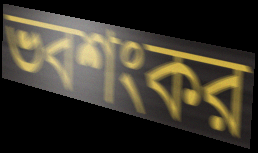
ভবশংকর